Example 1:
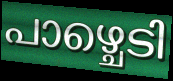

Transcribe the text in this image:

പാഴ്ചെടി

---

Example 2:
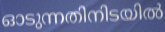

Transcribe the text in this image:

ഓടുന്നതിനിടയിൽ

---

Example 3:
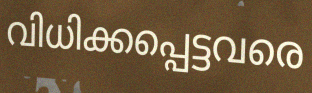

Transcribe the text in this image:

വിധിക്കപ്പെട്ടവരെ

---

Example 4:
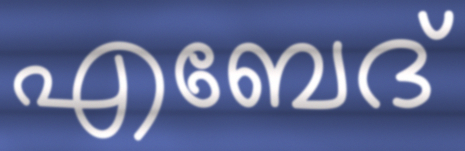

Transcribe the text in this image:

എബേദ്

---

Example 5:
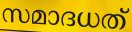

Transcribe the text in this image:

സമാദധത്